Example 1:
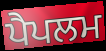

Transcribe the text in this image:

ਪੈਪਲਮ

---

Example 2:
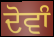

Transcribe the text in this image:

ਦੋਵਾੰ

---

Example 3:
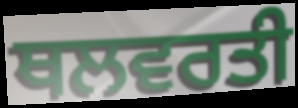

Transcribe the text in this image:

ਥਲਵਰਤੀ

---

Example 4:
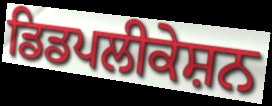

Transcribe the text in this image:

ਡਿਡਪਲੀਕੇਸ਼ਨ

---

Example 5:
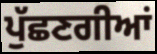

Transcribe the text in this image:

ਪੁੱਛਣਗੀਆਂ